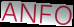
ANFO